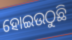
ହୋଇଉଠୁଛି